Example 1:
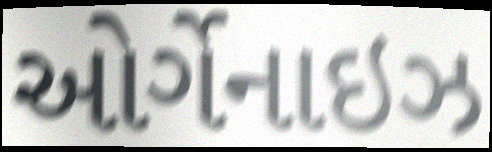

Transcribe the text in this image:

ઓર્ગેનાઇઝ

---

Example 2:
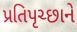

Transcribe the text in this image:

પ્રતિપૃચ્છાને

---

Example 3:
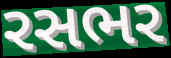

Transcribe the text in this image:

રસભર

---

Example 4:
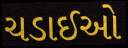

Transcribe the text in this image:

ચડાઈઓ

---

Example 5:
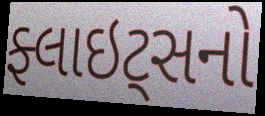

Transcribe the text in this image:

ફ્લાઇટ્સનો